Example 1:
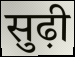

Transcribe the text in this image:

सुढ़ी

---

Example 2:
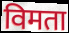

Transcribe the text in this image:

विमता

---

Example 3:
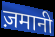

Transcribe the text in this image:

ज़मानी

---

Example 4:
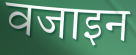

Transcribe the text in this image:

वजाइन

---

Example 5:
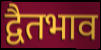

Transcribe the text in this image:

द्वैतभाव